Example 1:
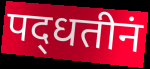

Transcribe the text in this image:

पद्धतीनं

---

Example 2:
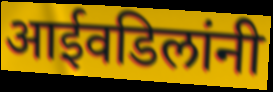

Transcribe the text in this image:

आईवडिलांनी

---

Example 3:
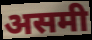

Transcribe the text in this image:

असमी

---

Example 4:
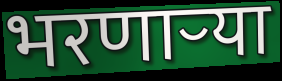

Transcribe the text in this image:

भरणाऱ्या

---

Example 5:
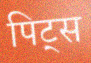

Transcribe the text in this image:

पिट्स